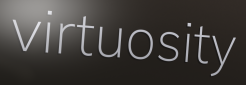
virtuosity